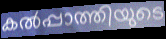
കൽപ്പാത്തിയുടെ